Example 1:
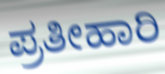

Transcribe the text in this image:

ಪ್ರತೀಹಾರಿ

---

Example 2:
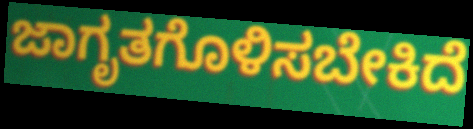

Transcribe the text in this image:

ಜಾಗೃತಗೊಳಿಸಬೇಕಿದೆ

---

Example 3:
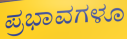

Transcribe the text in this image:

ಪ್ರಭಾವಗಳೂ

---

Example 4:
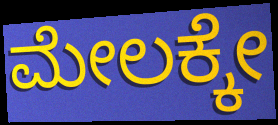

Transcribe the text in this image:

ಮೇಲಕ್ಕೇ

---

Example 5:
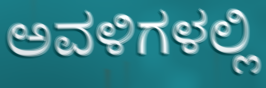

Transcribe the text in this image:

ಅವಳಿಗಳಲ್ಲಿ